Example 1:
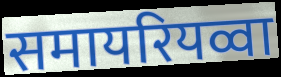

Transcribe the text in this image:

समायरियव्वा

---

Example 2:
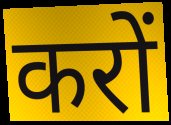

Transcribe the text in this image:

करों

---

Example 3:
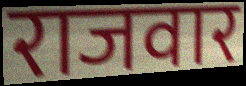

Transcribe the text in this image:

राजवार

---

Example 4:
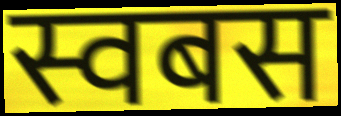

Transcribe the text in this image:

स्वबस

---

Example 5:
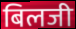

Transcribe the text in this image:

बिलजी